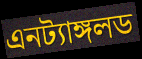
এনট্যাঙ্গলড